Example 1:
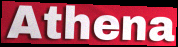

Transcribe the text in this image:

Athena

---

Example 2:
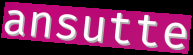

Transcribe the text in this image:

ansutte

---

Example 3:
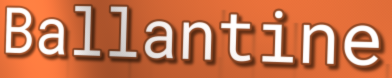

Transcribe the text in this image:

Ballantine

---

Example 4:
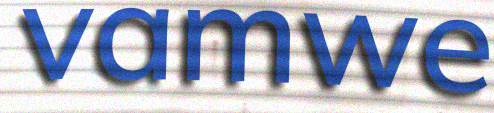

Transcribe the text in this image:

vamwe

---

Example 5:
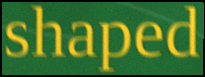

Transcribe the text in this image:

shaped